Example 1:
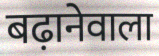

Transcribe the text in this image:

बढ़ानेवाला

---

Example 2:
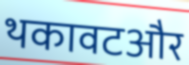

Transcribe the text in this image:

थकावटऔर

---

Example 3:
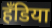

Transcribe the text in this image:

हँडिया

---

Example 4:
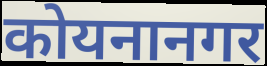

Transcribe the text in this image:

कोयनानगर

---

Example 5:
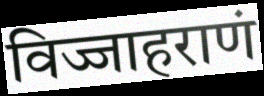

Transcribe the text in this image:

विज्जाहराणं